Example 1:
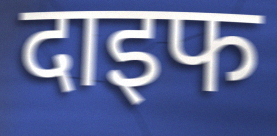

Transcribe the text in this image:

दाइफ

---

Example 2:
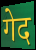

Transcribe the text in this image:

गेद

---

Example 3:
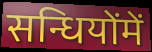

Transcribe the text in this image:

सन्धियोंमें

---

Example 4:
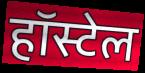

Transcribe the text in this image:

हॉस्टेल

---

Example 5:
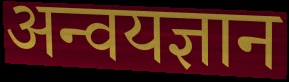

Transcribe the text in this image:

अन्वयज्ञान